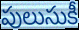
పులుసుకీ